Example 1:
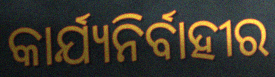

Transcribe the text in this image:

କାର୍ଯ୍ୟନିର୍ବାହୀର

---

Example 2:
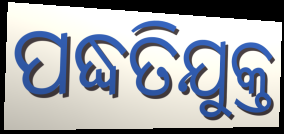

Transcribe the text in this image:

ପଦ୍ଧତିଯୁକ୍ତ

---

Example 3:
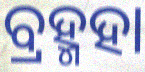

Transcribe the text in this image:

ବ୍ରହ୍ମହା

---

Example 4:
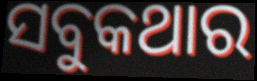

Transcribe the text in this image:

ସବୁକଥାର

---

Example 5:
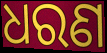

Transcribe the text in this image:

ଧରଣ